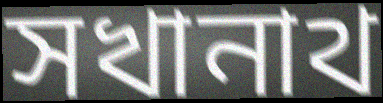
সখানাথ